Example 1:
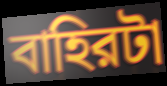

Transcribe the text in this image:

বাহিরটা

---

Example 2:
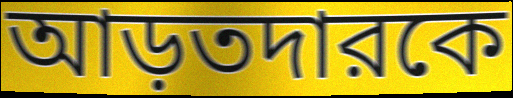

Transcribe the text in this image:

আড়তদারকে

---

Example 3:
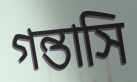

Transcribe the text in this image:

গন্তাসি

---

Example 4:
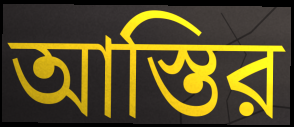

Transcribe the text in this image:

আস্তির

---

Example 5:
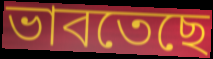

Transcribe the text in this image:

ভাবতেছে